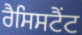
ਰੈਸਿਸਟੈਂਟ